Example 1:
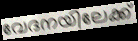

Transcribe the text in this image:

വേദനയിലേക്ക്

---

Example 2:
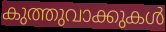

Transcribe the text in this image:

കുത്തുവാക്കുകൾ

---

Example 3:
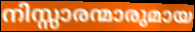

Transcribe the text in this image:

നിസ്സാരന്മാരുമായ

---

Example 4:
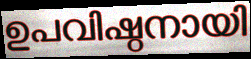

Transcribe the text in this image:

ഉപവിഷ്ഠനായി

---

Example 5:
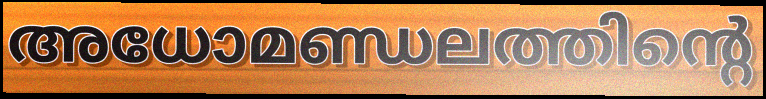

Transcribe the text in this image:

അധോമണ്ഡലത്തിന്റെ